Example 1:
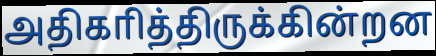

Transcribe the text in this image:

அதிகரித்திருக்கின்றன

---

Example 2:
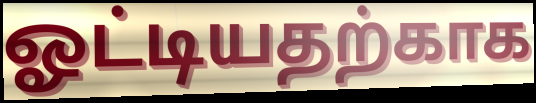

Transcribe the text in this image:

ஓட்டியதற்காக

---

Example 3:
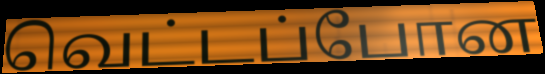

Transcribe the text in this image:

வெட்டப்போன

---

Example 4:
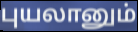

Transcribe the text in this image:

புயலானும்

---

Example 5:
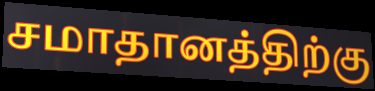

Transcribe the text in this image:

சமாதானத்திற்கு